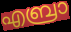
എബ്രാ